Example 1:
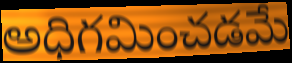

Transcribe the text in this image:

అధిగమించడమే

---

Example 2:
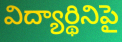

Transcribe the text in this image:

విద్యార్థినిపై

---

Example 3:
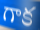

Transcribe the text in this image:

గాక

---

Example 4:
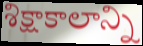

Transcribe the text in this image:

శిక్షాకాలాన్ని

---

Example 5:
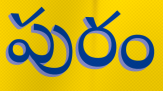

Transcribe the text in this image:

పురం